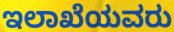
ಇಲಾಖೆಯವರು